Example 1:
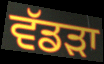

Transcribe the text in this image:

ਵੱਡਡ਼ਾ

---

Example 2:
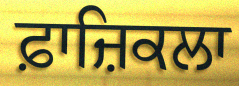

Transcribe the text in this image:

ਫ਼ਾਜ਼ਿਕਲਾ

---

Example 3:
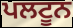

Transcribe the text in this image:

ਪਲਟੂਨ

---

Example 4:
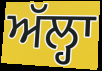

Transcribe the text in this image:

ਅੱਲ੍ਹਾ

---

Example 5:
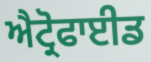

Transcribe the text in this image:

ਐਟ੍ਰੋਫਾਈਡ